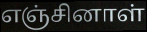
எஞ்சினாள்